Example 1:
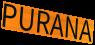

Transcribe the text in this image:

PURANA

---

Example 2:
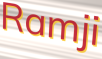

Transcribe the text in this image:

Ramji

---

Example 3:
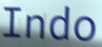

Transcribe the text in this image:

Indo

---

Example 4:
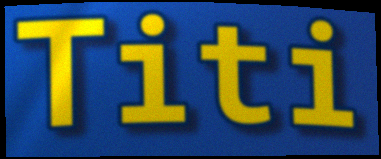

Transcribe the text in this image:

Titi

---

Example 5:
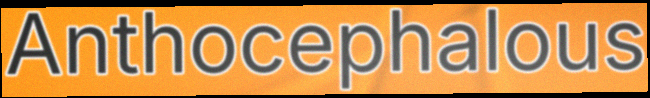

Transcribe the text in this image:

Anthocephalous